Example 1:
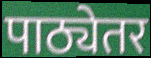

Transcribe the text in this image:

पाठ्येतर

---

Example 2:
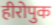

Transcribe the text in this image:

हीरोपुक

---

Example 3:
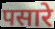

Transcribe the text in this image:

पसारे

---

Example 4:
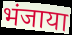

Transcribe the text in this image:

भंजाया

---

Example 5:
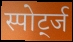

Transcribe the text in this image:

स्पोर्ट्ज